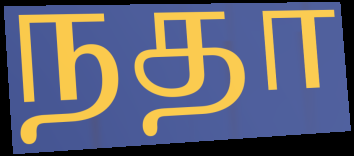
நதா